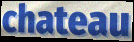
chateau